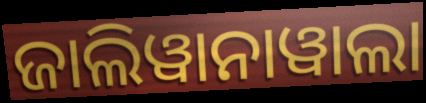
ଜାଲିୱାନାୱାଲା